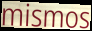
mismos